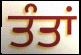
ਤੰਤਾਂ